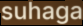
suhaga